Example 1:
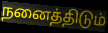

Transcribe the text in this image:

நனைத்திடும்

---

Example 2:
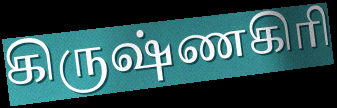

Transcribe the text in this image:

கிருஷ்ணகிரி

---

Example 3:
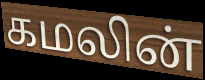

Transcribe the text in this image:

கமலின்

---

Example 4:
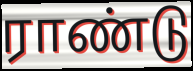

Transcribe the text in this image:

ராண்டு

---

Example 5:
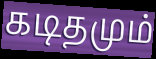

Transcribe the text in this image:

கடிதமும்